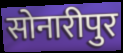
सोनारीपुर